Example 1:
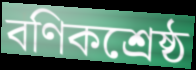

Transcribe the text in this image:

বণিকশ্রেষ্ঠ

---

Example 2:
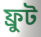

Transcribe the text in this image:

ফ্রুট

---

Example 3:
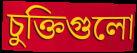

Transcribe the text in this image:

চুক্তিগুলো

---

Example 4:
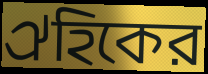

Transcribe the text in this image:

ঐহিকের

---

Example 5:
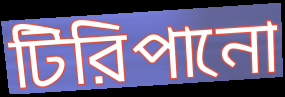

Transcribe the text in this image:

টিরিপানো